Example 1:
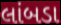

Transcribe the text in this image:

લાંબડા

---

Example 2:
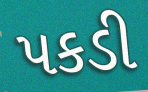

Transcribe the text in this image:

પકડી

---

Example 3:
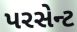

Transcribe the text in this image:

પરસેન્ટ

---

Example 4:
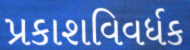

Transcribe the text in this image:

પ્રકાશવિવર્ધક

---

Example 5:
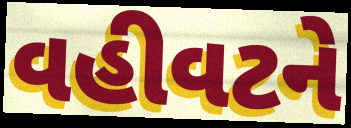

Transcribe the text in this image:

વહીવટને